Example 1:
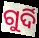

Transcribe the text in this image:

ଗୁର୍ଦି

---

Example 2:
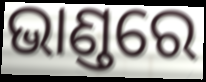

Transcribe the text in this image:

ଭାଣ୍ଡରେ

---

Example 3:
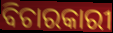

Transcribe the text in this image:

ବିଚାରକାରୀ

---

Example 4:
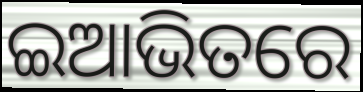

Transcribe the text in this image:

ଇଆଭିତରେ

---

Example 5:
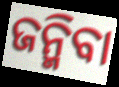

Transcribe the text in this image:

ଜନ୍ମିବା